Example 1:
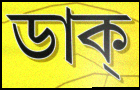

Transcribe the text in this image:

ডাক্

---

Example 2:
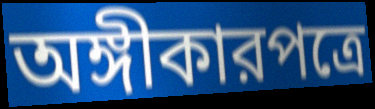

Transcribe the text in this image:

অঙ্গীকারপত্রে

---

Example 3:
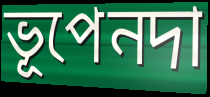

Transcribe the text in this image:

ভূপেনদা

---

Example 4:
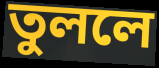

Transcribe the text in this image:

তুললে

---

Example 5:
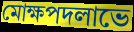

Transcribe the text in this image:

মোক্ষপদলাভে